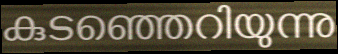
കുടഞ്ഞെറിയുന്നു